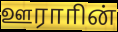
ஊராரின்